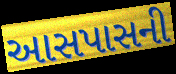
આસપાસની